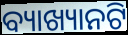
ବ୍ୟାଖ୍ୟାନଟି